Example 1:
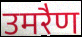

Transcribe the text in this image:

उमरैण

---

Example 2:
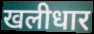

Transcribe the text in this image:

खलीधार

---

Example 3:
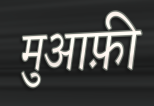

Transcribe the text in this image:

मुआफ़ी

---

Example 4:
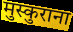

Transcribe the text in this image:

मुस्कुराना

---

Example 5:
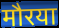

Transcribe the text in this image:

मौरया